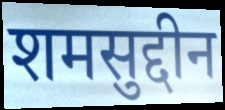
शमसुद्दीन